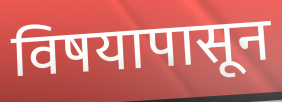
विषयापासून